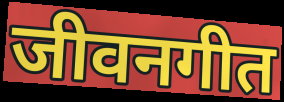
जीवनगीत